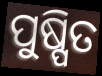
ପୁଷ୍ପିତ